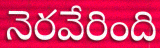
నెరవేరింది